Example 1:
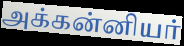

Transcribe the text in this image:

அக்கன்னியர்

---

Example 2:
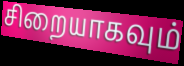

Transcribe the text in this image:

சிறையாகவும்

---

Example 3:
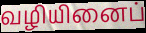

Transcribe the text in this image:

வழியினைப்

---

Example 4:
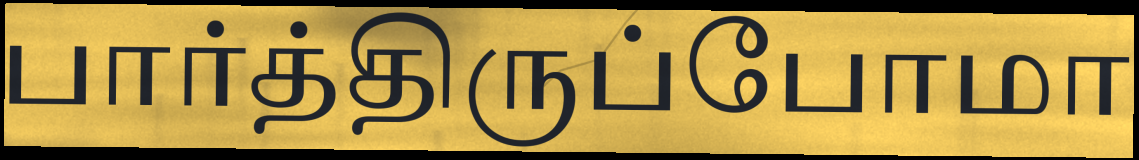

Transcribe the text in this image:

பார்த்திருப்போமா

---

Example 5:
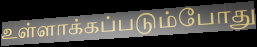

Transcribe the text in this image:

உள்ளாக்கப்படும்போது